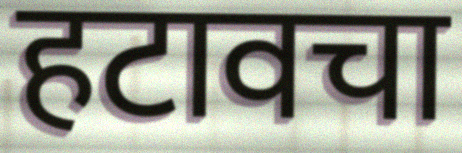
हटावचा